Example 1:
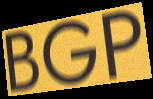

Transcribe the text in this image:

BGP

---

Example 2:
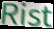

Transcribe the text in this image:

Rist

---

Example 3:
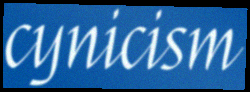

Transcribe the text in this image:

cynicism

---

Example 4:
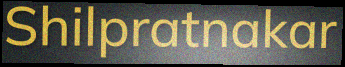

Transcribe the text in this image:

Shilpratnakar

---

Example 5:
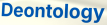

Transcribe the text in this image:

Deontology